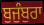
ਬੁਜੁੰਬੁਰਾ